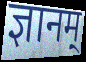
ज्ञानम्